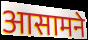
आसामने